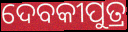
ଦେବକୀପୁତ୍ର